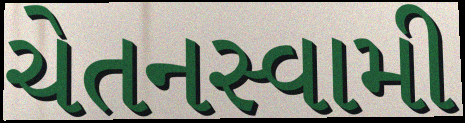
ચેતનસ્વામી